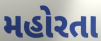
મહોરતા